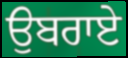
ਉਬਰਾਏ